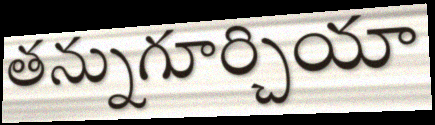
తన్నుగూర్చియా